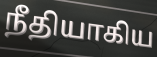
நீதியாகிய